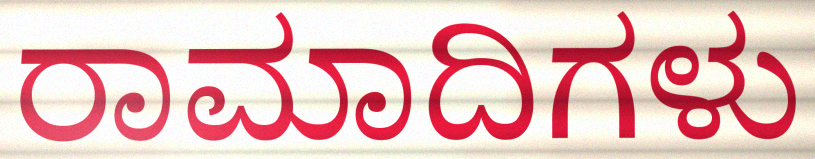
ರಾಮಾದಿಗಳು